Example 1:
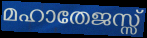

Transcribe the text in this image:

മഹാതേജസ്സ്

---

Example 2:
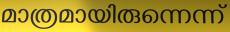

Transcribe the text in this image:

മാത്രമായിരുന്നെന്ന്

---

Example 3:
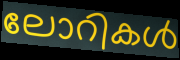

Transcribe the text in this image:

ലോറികൾ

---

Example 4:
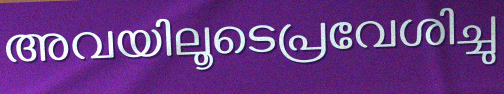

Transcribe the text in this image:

അവയിലൂടെപ്രവേശിച്ചു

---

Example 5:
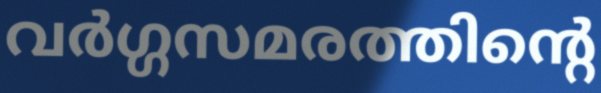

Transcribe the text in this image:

വർഗ്ഗസമരത്തിന്റെ